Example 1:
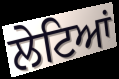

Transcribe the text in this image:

ਲੇਟਿਆਂ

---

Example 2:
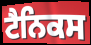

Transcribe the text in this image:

ਟੈਨਿਕਸ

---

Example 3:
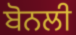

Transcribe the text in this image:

ਬੋਨਲੀ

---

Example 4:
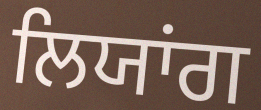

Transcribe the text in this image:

ਲਿਯਾਂਗ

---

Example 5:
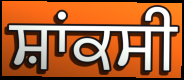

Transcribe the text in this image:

ਸ਼ਾਂਕਸੀ